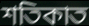
শতিকাত